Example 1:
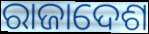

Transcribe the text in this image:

ରାଜାଦେଶ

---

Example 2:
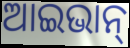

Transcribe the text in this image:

ଆଇଭାନ୍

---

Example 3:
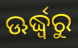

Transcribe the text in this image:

ଊର୍ଦ୍ଧ୍ଵରୁ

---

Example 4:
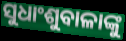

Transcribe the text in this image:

ସୁଧାଂଶୁବାଳାଙ୍କୁ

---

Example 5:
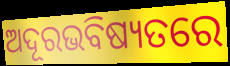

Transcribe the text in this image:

ଅଦୂରଭବିଷ୍ୟତରେ